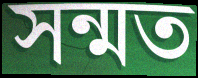
সন্মত